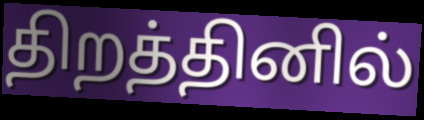
திறத்தினில்